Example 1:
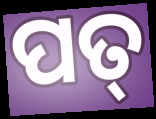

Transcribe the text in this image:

ପତ୍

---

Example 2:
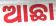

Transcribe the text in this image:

ଆଛା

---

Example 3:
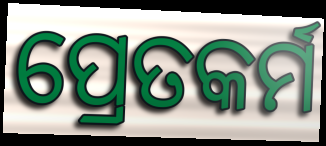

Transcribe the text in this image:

ପ୍ରେତକର୍ମ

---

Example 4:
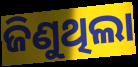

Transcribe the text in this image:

ଜିଣୁଥିଲା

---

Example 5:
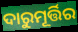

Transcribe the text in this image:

ଦାରୁମୂର୍ତ୍ତିର